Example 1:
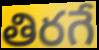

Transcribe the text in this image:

తిరగే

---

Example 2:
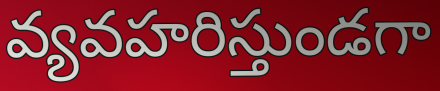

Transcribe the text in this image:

వ్యవహరిస్తుండగా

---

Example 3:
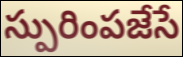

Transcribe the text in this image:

స్పురింపజేసే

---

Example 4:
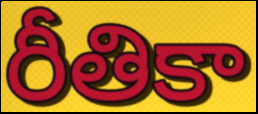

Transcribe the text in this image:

రీతికా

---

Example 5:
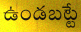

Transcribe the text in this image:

ఉండబట్టే